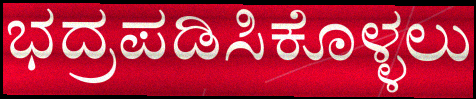
ಭದ್ರಪಡಿಸಿಕೊಳ್ಳಲು